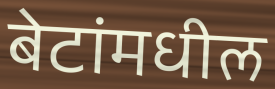
बेटांमधील